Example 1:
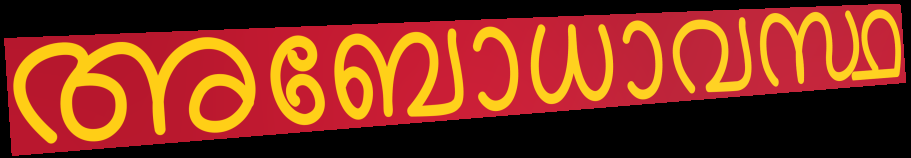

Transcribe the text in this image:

അബോധാവസ്ഥ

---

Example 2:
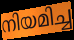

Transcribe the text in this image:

നിയമിച്ച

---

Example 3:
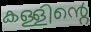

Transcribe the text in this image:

കള്ളിന്റെ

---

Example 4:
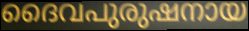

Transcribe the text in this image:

ദൈവപുരുഷനായ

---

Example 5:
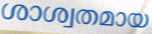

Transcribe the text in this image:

ശാശ്വതമായ